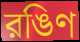
রঙিণ